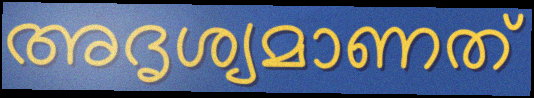
അദൃശ്യമാണത്